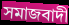
সমাজবাদী